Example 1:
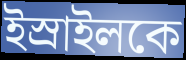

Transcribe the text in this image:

ইস্রাইলকে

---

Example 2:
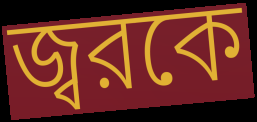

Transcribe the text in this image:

জ্বরকে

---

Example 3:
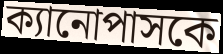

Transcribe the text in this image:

ক্যানোপাসকে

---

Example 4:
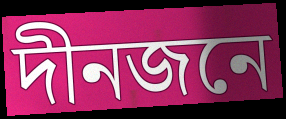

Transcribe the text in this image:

দীনজনে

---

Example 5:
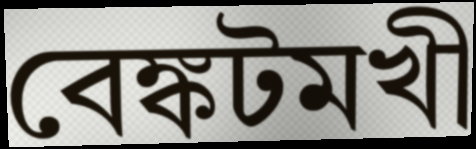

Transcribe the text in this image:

বেঙ্কটমখী